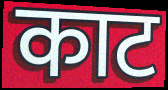
काट